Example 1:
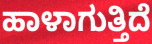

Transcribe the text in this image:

ಹಾಳಾಗುತ್ತಿದೆ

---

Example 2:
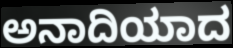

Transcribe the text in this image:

ಅನಾದಿಯಾದ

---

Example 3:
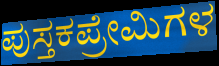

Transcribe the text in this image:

ಪುಸ್ತಕಪ್ರೇಮಿಗಳ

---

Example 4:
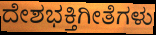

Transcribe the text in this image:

ದೇಶಭಕ್ತಿಗೀತೆಗಳು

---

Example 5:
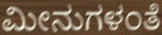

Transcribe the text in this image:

ಮೀನುಗಳಂತೆ